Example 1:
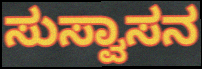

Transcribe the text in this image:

ಸುಸ್ವಾಸನ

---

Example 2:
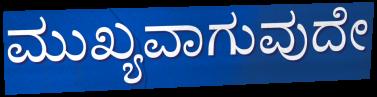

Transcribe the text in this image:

ಮುಖ್ಯವಾಗುವುದೇ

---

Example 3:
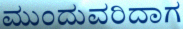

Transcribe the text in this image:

ಮುಂದುವರಿದಾಗ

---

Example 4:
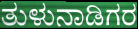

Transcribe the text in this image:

ತುಳುನಾಡಿಗರ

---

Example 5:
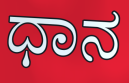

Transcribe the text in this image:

ಧಾನ